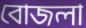
বোজলা